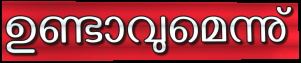
ഉണ്ടാവുമെന്നു്